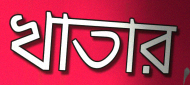
খাতার